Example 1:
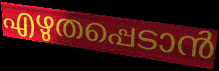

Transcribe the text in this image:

എഴുതപ്പെടാൻ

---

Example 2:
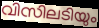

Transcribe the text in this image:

വിസിലടിയും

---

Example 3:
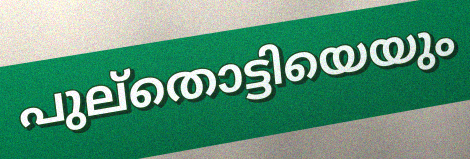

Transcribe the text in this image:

പുല്തൊട്ടിയെയും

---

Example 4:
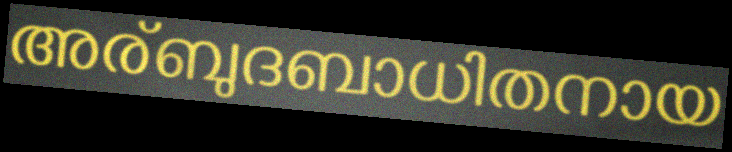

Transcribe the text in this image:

അര്ബുദബാധിതനായ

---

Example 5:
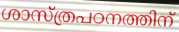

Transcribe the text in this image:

ശാസ്ത്രപഠനത്തിന്